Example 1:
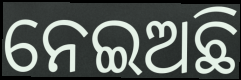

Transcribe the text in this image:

ନେଇଅଛି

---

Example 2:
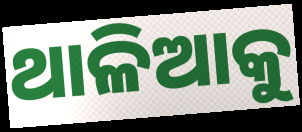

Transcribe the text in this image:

ଥାଳିଆକୁ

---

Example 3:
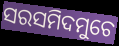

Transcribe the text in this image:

ସରସମିଦମୁଚେ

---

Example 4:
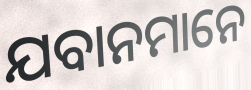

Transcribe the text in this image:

ଯବାନମାନେ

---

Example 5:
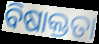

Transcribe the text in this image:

ବିଷାକ୍ତତା